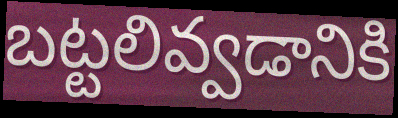
బట్టలివ్వడానికి